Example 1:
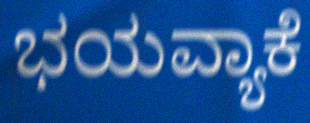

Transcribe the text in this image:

ಭಯವ್ಯಾಕೆ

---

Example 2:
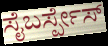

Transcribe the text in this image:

ಸೈಬರ್ಸ್ಪೇಸ್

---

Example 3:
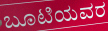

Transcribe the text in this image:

ಬೂಟಿಯವರ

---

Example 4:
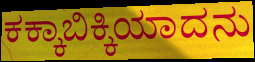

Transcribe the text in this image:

ಕಕ್ಕಾಬಿಕ್ಕಿಯಾದನು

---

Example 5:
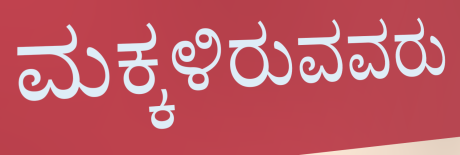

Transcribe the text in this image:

ಮಕ್ಕಳಿರುವವರು